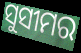
ସୁସୀମର